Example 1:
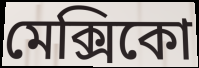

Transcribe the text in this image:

মেক্সিকো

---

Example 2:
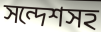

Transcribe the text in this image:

সন্দেশসহ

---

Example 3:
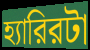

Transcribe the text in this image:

হ্যারিরটা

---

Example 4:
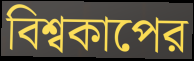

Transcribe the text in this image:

বিশ্বকাপের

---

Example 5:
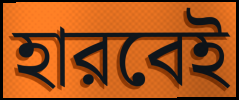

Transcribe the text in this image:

হারবেই